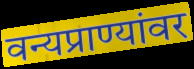
वन्यप्राण्यांवर